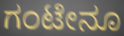
ಗಂಟೇನೂ